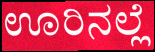
ಊರಿನಲ್ಲೆ